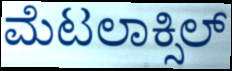
ಮೆಟಲಾಕ್ಸಿಲ್